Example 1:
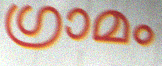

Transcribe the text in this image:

ഗ്രാമം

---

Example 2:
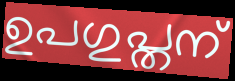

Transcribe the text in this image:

ഉപഗുപ്തന്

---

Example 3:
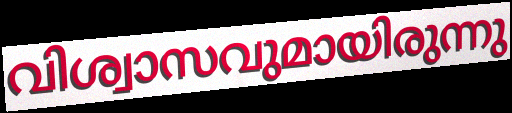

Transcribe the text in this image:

വിശ്വാസവുമായിരുന്നു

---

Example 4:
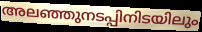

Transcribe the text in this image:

അലഞ്ഞുനടപ്പിനിടയിലും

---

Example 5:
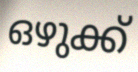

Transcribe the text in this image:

ഒഴുക്ക്